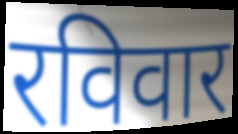
रविवार